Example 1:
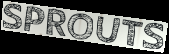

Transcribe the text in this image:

SPROUTS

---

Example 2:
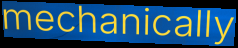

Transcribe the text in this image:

mechanically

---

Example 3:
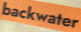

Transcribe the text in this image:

backwater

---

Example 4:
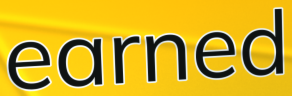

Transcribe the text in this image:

earned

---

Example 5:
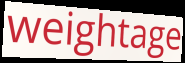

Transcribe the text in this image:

weightage